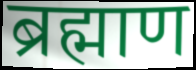
ब्रह्माण